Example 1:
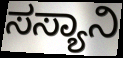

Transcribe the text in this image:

ಸಸ್ಯಾನಿ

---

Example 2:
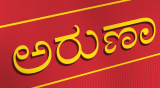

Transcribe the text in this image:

ಅರುಣಾ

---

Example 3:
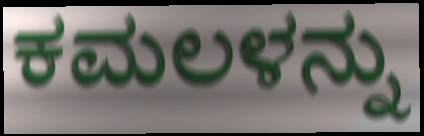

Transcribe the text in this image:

ಕಮಲಳನ್ನು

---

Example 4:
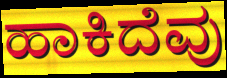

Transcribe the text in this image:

ಹಾಕಿದೆವು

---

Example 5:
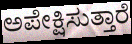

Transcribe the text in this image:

ಅಪೇಕ್ಷಿಸುತ್ತಾರೆ